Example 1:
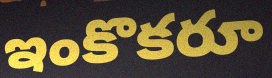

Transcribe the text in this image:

ఇంకొకరూ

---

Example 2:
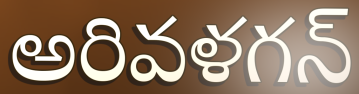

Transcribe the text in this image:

అరివళగన్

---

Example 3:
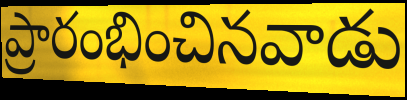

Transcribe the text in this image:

ప్రారంభించినవాడు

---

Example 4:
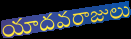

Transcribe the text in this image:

యాదవరాజులు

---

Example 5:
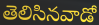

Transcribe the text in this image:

తెలిసినవాడో